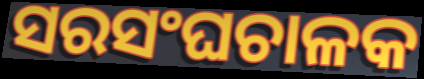
ସରସଂଘଚାଳକ